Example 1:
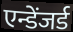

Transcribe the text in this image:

एन्डेंजर्ड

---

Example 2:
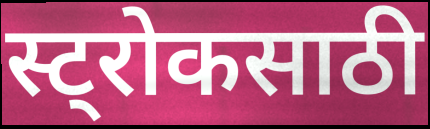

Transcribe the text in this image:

स्ट्रोकसाठी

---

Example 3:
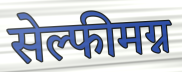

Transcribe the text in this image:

सेल्फीमग्न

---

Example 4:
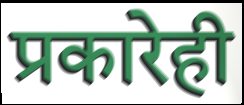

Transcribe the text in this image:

प्रकारेही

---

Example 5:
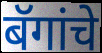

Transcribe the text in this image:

बॅगांचे